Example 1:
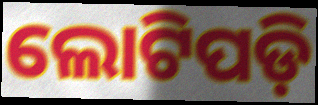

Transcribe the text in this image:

ଲୋଟିପଡ଼ି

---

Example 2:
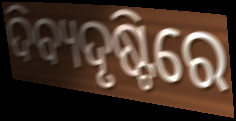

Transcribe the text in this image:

ଦିବ୍ୟଦୃଷ୍ଟିରେ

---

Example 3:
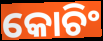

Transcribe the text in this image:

କୋଚିଂ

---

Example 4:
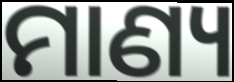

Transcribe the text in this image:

ମାଣ୍ୟ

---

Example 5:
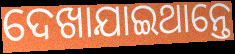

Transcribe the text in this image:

ଦେଖାଯାଇଥାନ୍ତେ